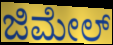
ಜಿಮೇಲ್